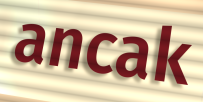
ancak